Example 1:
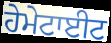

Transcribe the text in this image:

ਹੇਮੇਟਾਈਟ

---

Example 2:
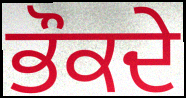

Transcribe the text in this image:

ਭੌਕਦੇ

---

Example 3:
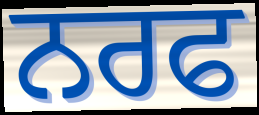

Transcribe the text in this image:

ਨਰਫ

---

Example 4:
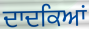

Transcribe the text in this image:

ਦਾਦਕਿਆਂ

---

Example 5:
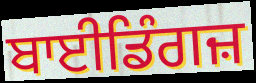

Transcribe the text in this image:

ਬਾਈਡਿੰਗਜ਼